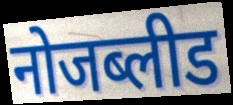
नोजब्लीड